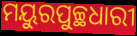
ମୟୁରପୁଚ୍ଛଧାରୀ